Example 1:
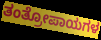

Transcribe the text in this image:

ತಂತ್ರೋಪಾಯಗಳ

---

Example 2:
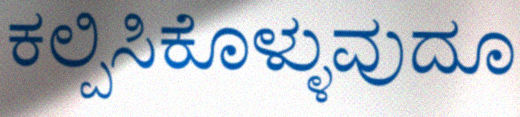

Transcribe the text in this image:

ಕಲ್ಪಿಸಿಕೊಳ್ಳುವುದೂ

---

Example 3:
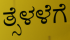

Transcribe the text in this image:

ತ್ಸೆಳಳೆಗೆ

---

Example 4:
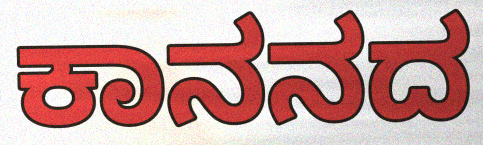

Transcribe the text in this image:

ಕಾನನದ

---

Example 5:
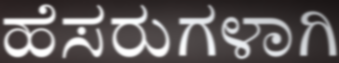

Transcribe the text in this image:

ಹೆಸರುಗಳಾಗಿ